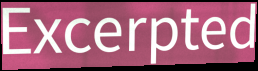
Excerpted